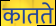
कातते